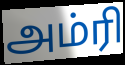
அம்ரி